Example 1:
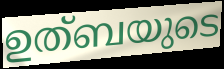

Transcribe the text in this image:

ഉത്ബയുടെ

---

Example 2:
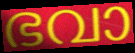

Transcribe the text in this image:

ഭവാ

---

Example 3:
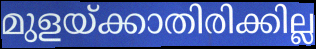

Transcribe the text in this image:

മുളയ്ക്കാതിരിക്കില്ല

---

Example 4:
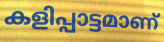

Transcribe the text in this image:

കളിപ്പാട്ടമാണ്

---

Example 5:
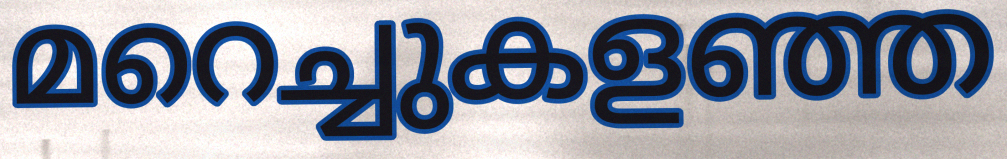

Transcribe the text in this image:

മറെച്ചുകളഞ്ഞ